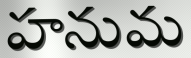
హనుమ